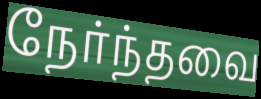
நேர்ந்தவை